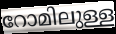
റോമിലുള്ള